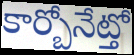
కార్బోనేట్తో